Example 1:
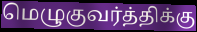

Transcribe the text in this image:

மெழுகுவர்த்திக்கு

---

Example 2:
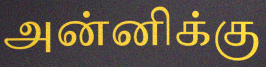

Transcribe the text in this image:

அன்னிக்கு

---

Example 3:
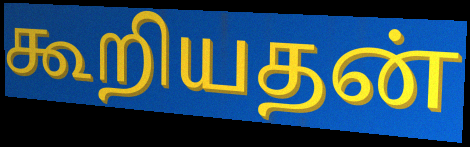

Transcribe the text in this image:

கூறியதன்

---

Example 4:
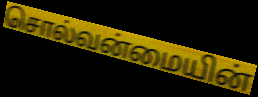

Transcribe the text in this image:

சொல்வன்மையின்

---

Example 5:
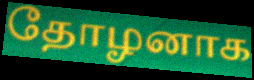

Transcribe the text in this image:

தோழனாக